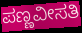
ಪಣ್ಣವೀಸತಿ